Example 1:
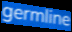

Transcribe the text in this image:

germline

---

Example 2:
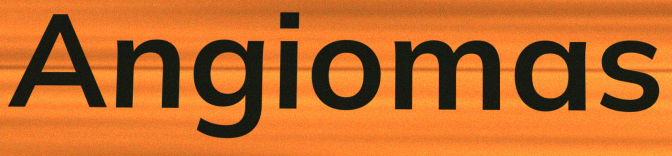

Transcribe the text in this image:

Angiomas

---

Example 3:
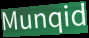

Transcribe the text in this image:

Munqid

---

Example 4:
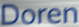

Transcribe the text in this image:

Doren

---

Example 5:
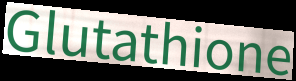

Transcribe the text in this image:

Glutathione